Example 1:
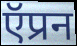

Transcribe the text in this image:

ऍप्रन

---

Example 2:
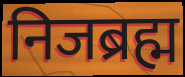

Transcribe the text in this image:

निजब्रह्म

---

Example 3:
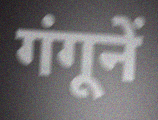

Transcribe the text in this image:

गंगूनें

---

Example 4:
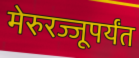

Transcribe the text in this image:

मेरुरज्जूपर्यंत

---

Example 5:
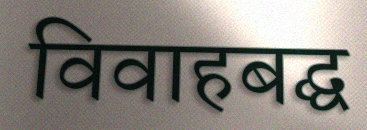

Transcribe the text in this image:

विवाहबद्घ